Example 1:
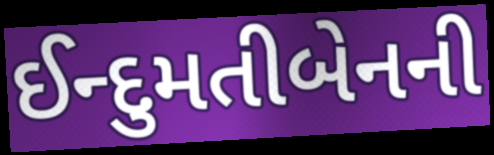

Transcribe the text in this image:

ઈન્દુમતીબેનની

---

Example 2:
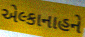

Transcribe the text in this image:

એલ્કાનાહને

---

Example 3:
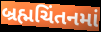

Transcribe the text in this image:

બ્રહ્મચિંતનમાં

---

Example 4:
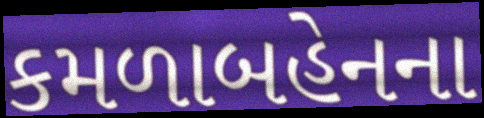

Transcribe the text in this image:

કમળાબહેનના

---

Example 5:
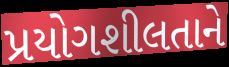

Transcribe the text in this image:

પ્રયોગશીલતાને